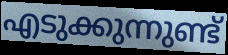
എടുക്കുന്നുണ്ട്